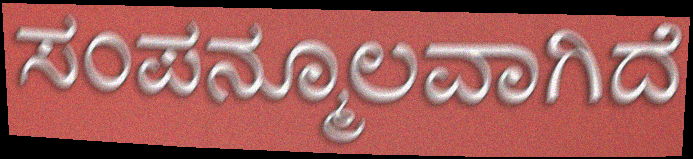
ಸಂಪನ್ಮೂಲವಾಗಿದೆ